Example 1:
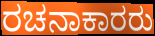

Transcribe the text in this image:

ರಚನಾಕಾರರು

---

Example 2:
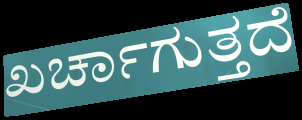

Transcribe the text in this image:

ಖರ್ಚಾಗುತ್ತದೆ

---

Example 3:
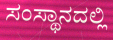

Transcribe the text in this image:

ಸಂಸ್ಥಾನದಲ್ಲಿ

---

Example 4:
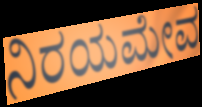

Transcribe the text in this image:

ನಿರಯಮೇವ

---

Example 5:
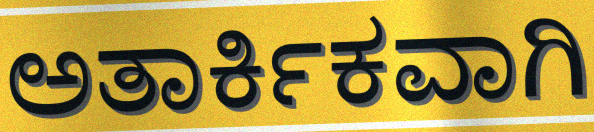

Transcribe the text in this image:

ಅತಾರ್ಕಿಕವಾಗಿ